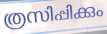
ത്രസിപ്പിക്കും